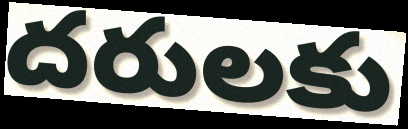
దరులకు